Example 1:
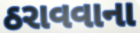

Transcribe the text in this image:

ઠરાવવાના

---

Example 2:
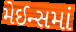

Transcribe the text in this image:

મેઈન્સમાં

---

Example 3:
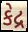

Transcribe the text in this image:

કેદ્ર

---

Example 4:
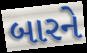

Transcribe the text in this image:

બારને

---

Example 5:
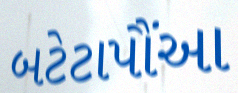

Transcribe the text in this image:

બટેટાપૌંઆ